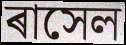
ৰাসেল